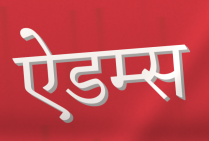
ऐडम्स